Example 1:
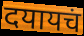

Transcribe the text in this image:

दयायचं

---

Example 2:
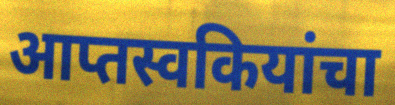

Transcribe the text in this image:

आप्तस्वकियांचा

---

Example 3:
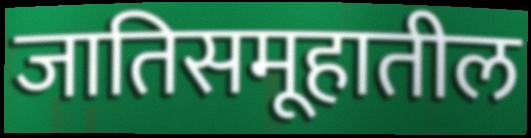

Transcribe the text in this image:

जातिसमूहातील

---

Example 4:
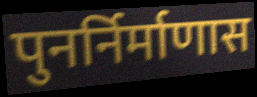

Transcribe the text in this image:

पुनर्निर्माणास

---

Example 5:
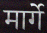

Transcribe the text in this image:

मार्गे